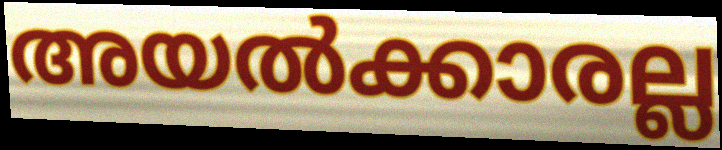
അയൽക്കാരല്ല